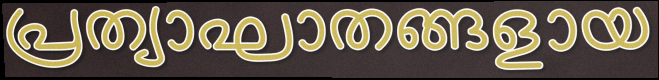
പ്രത്യാഘാതങ്ങളായ